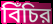
বিঁচির